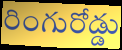
రింగురోడ్డు